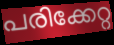
പരിക്കേറ്റ